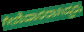
ಗೇಣಿದಾರರಾಗಿದ್ದರು